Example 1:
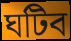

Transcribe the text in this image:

ঘটিব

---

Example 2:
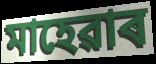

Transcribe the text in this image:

মাহেৱাৰ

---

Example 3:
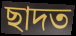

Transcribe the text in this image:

ছাদত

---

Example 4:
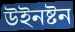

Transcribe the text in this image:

উইনষ্টন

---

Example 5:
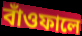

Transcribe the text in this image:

বাঁওফালে